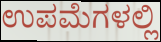
ಉಪಮೆಗಳಲ್ಲಿ